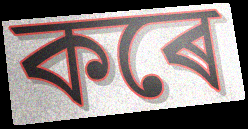
কৰে